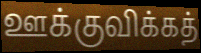
ஊக்குவிக்கத்